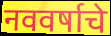
नववर्षाचे